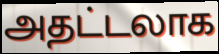
அதட்டலாக